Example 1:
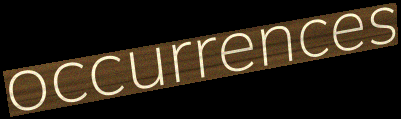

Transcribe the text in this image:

occurrences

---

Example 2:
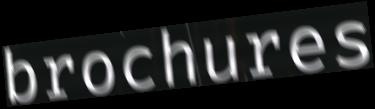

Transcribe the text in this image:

brochures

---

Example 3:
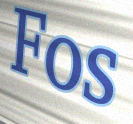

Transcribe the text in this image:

Fos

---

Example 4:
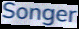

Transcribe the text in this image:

Songer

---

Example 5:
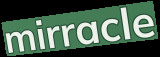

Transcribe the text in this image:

mirracle